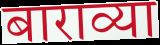
बाराव्या